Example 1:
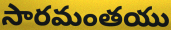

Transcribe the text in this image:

సారమంతయు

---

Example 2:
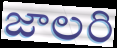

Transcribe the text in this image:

జాలరి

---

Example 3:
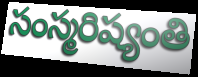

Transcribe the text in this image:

సంస్మరిష్యంతి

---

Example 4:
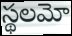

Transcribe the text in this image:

స్థలమో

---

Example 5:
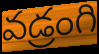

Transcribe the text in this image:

వడ్రంగి